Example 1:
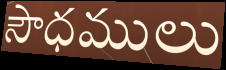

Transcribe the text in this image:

సౌధములు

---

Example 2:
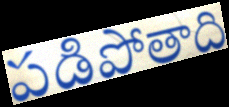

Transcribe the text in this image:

పడిపోతాది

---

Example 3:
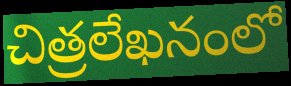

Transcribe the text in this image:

చిత్రలేఖనంలో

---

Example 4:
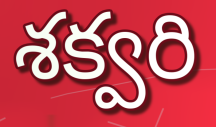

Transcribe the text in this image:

శక్వరి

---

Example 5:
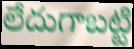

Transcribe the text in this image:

లేదుగాబట్టి